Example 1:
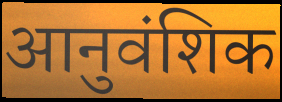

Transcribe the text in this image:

आनुवंशिक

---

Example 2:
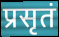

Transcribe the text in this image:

प्रसृतं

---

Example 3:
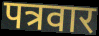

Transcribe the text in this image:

पत्रवार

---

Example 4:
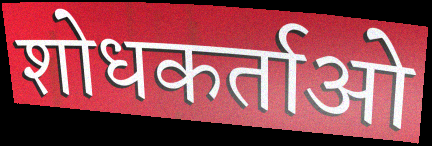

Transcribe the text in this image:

शोधकर्ताओ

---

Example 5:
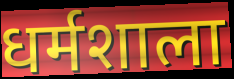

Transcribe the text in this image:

धर्मशाला